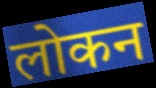
लोकन